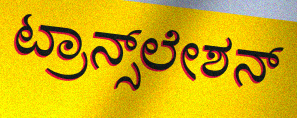
ಟ್ರಾನ್ಸ್‌ಲೇಶನ್